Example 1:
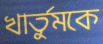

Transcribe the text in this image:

খার্তুমকে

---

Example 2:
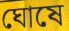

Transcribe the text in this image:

ঘোষে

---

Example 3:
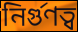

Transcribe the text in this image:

নির্গুণত্ব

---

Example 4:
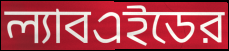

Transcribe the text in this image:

ল্যাবএইডের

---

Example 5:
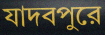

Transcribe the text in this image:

যাদবপুরে